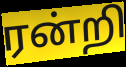
ரன்றி